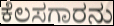
ಕೆಲಸಗಾರನು